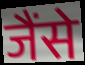
जैंसे